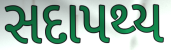
સદાપથ્ય